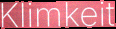
Klimkeit